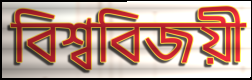
বিশ্ববিজয়ী